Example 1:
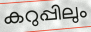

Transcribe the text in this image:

കറുപ്പിലും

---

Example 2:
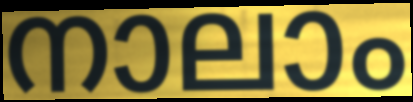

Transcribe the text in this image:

നാലാം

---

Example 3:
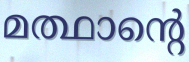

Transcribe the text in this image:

മത്ഥാന്റെ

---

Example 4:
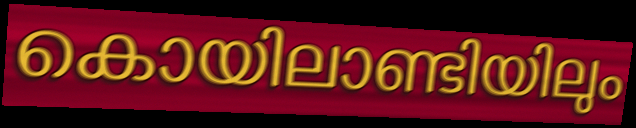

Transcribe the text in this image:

കൊയിലാണ്ടിയിലും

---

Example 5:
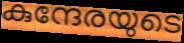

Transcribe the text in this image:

കുന്ദേരയുടെ